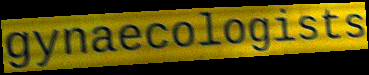
gynaecologists